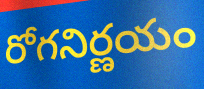
రోగనిర్ణయం